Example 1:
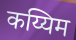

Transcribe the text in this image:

कय्यिम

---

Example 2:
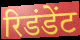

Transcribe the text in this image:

रिडंडेंट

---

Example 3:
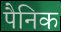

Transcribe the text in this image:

पैनिक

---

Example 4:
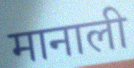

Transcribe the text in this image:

मानाली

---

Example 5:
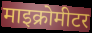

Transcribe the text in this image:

माइक्रोमीटर